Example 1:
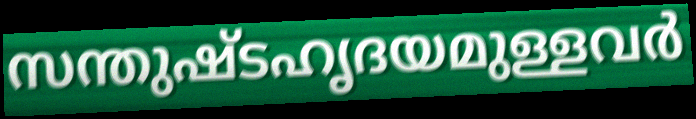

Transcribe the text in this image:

സന്തുഷ്ടഹൃദയമുള്ളവർ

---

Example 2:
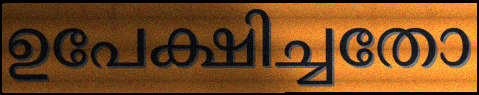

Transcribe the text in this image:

ഉപേക്ഷിച്ചതോ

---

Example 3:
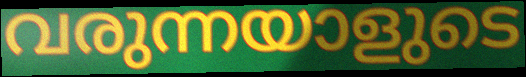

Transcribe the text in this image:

വരുന്നയാളുടെ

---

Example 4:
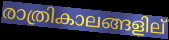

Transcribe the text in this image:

രാത്രികാലങ്ങളില്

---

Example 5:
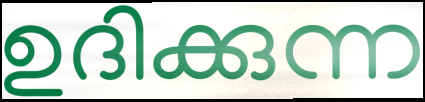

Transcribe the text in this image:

ഉദിക്കുന്ന